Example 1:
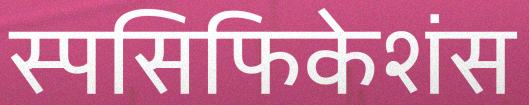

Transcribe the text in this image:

स्पसिफिकेशंस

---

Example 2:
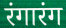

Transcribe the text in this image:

रंगारंग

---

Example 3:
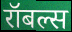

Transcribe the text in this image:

रॉबल्स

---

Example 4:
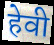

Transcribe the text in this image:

हेवी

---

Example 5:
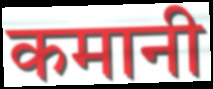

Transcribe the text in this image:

कमानी